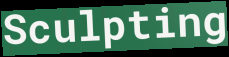
Sculpting